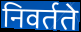
निवर्तते